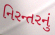
નિરન્તરનું